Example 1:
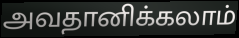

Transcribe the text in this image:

அவதானிக்கலாம்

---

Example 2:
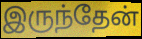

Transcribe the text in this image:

இருந்தேன்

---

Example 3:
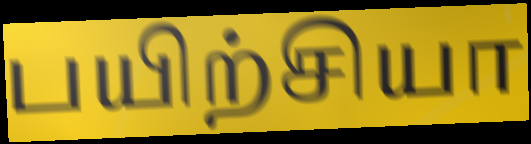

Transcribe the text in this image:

பயிற்சியா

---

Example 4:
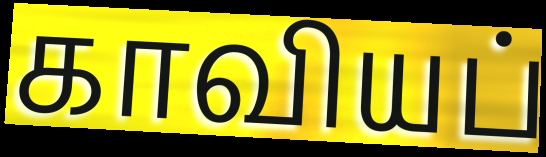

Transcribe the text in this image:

காவியப்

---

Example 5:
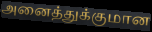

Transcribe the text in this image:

அனைத்துக்குமான